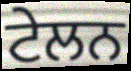
ਟੇਲਨ